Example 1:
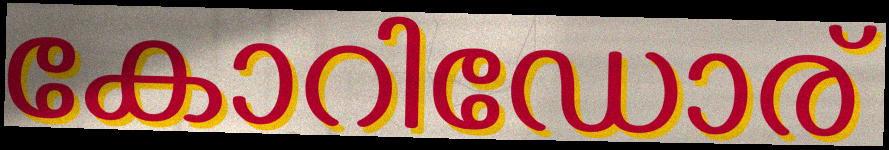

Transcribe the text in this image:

കോറിഡോര്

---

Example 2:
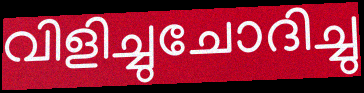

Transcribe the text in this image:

വിളിച്ചുചോദിച്ചു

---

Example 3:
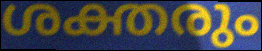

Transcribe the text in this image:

ശക്തരും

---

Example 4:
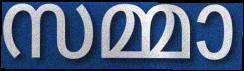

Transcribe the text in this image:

സമ്മാ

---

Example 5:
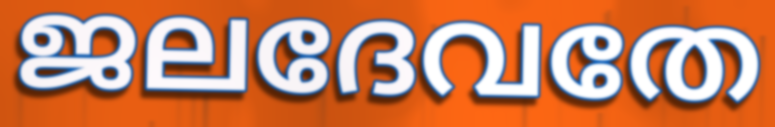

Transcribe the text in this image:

ജലദേവതേ